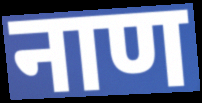
नाण